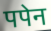
पपेन